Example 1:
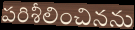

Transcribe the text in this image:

పరిశీలించినను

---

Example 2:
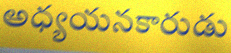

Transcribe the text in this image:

అధ్యయనకారుడు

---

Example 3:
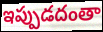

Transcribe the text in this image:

ఇప్పుడదంతా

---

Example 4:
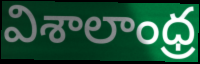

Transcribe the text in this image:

విశాలాంధ్ర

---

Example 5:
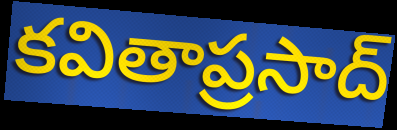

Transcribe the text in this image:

కవితాప్రసాద్